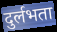
दुर्लभता